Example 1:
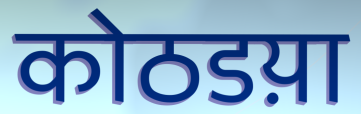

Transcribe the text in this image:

कोठडय़ा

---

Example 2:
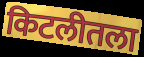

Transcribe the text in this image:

किटलीतला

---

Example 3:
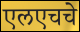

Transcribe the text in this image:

एलएचचे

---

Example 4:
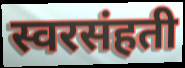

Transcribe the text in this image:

स्वरसंहती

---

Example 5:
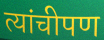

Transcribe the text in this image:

त्यांचीपण